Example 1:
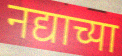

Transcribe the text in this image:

नद्याच्या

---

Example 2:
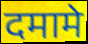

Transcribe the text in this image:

दमामे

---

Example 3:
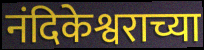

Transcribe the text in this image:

नंदिकेश्वराच्या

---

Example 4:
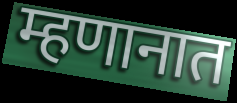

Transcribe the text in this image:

म्हणानात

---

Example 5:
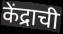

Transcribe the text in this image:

केंद्राची